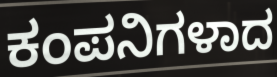
ಕಂಪನಿಗಳಾದ